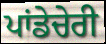
ਪਾਂਡੇਚੇਰੀ